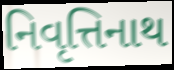
નિવૃત્તિનાથ